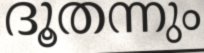
ദൂതന്നും